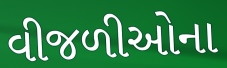
વીજળીઓના